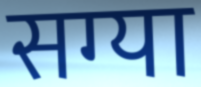
सग्या